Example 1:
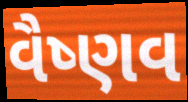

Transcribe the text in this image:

વૈષ્ણવ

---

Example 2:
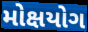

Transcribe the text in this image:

મોક્ષયોગ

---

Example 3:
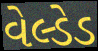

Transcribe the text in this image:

વેલ્ડેડ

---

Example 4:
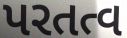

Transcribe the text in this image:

પરતત્વ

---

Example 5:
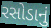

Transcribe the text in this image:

રસોડાનું